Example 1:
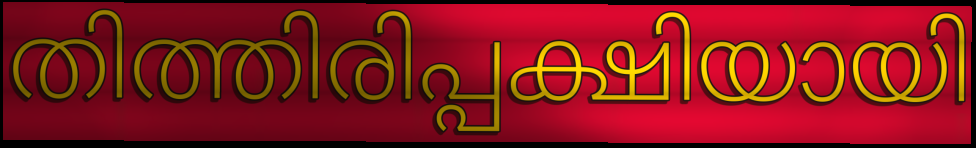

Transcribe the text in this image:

തിത്തിരിപ്പക്ഷിയായി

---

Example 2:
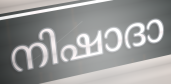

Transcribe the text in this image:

നിഷാദാ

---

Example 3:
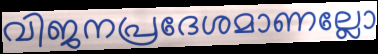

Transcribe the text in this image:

വിജനപ്രദേശമാണല്ലോ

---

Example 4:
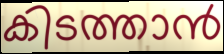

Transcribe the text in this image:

കിടത്താൻ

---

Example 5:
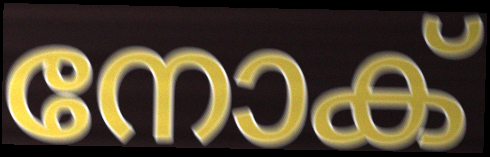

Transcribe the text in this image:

നോക്